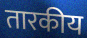
तारकीय